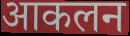
आकलन